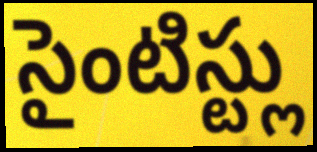
సైంటిస్ట్లు